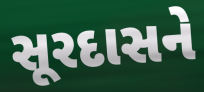
સૂરદાસને